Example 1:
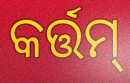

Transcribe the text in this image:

କର୍ତ୍ତମ୍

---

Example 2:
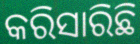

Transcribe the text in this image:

କରିସାରିଛି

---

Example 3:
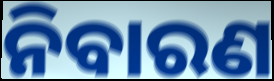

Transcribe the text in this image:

ନିବାରଣ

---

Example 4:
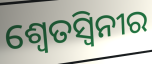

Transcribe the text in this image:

ଶ୍ୱେତସ୍ୱିନୀର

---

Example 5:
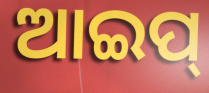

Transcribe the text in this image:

ଆଇପ୍